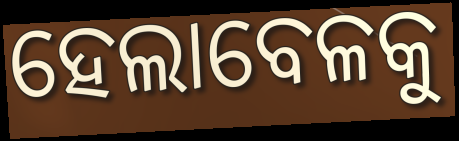
ହେଲାବେଳକୁ